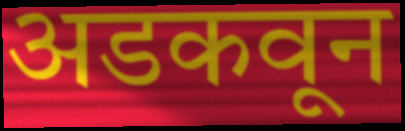
अडकवून